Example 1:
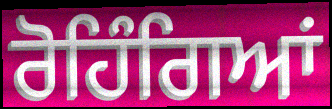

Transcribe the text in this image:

ਰੋਹਿੰਗਿਆਂ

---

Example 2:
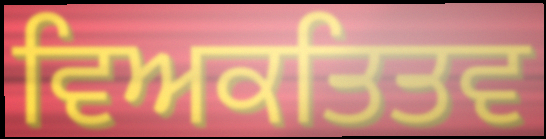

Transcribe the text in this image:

ਵਿਅਕਤਿਤਵ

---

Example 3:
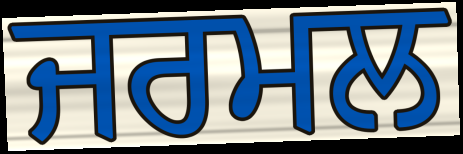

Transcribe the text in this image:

ਜਰਮਲ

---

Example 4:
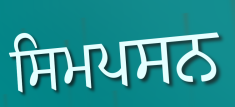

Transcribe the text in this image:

ਸਿਮਪਸਨ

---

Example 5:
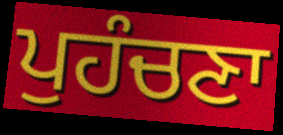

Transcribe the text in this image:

ਪੁਹੰਚਣਾ